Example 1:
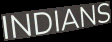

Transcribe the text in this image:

INDIANS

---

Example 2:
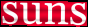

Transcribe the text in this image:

suns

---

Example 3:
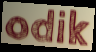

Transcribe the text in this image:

odik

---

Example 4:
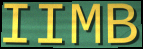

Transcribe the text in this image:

IIMB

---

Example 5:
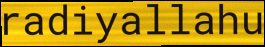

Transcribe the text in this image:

radiyallahu